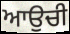
ਆਉਚੀ